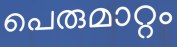
പെരുമാറ്റം